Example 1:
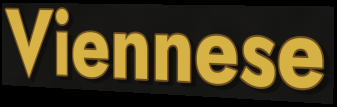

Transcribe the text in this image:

Viennese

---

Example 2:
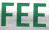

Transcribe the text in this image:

FEE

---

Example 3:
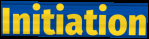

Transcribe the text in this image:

Initiation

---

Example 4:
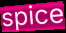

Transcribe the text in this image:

spice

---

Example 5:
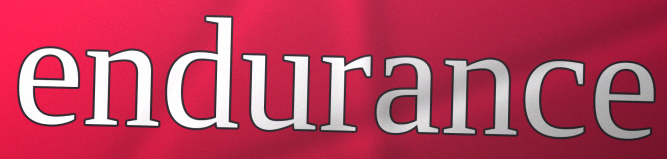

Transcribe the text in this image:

endurance